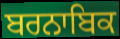
ਬਰਨਾਬਿਕ